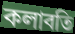
কলাবতি